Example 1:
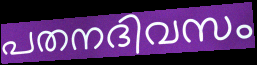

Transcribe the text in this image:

പതനദിവസം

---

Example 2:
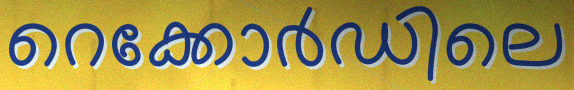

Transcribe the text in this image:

റെക്കോർഡിലെ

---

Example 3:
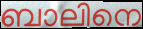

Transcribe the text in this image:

ബാലിനെ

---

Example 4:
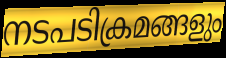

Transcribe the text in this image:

നടപടിക്രമങ്ങളും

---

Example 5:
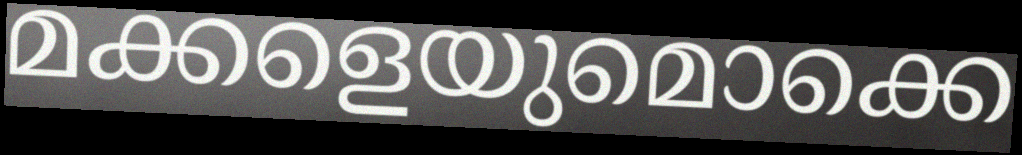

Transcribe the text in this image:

മക്കളെയുമൊക്കെ